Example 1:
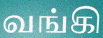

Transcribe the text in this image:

வங்கி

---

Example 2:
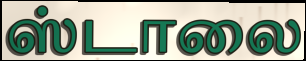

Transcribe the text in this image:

ஸ்டாலை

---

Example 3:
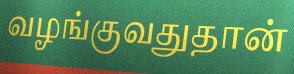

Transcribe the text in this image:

வழங்குவதுதான்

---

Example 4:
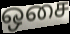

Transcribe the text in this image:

ஒசை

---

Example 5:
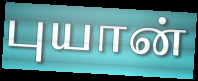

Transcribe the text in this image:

புயான்